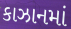
કાઝાનમાં